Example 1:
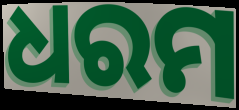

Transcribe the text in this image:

ଧରମ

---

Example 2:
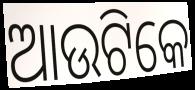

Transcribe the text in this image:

ଆଉଟିକେ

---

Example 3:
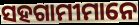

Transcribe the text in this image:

ସହଗାମୀମାନେ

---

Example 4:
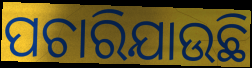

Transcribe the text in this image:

ପଚାରିଯାଉଛି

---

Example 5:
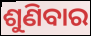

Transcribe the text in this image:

ଶୁଣିବାର